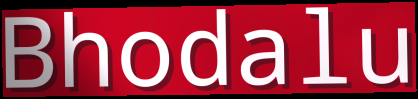
Bhodalu